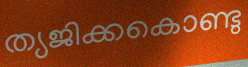
ത്യജിക്കകൊണ്ടു